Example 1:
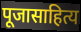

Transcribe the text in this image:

पूजासाहित्य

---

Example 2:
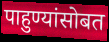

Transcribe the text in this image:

पाहुण्यांसोबत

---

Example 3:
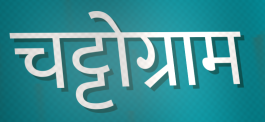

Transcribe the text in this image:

चट्टोग्राम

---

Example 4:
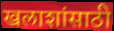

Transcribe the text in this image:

खलाशांसाठी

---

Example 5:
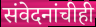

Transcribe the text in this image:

संवेदनांचीही